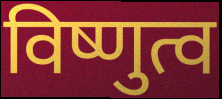
विष्णुत्व